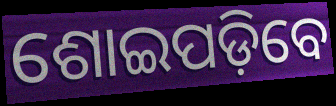
ଶୋଇପଡ଼ିବେ